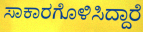
ಸಾಕಾರಗೊಳಿಸಿದ್ದಾರೆ